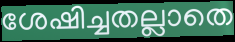
ശേഷിച്ചതല്ലാതെ